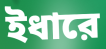
ইধারে